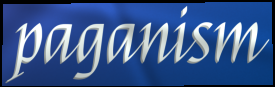
paganism